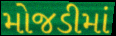
મોજડીમાં